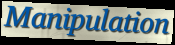
Manipulation